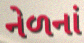
નેળનાં